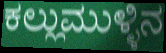
ಕಲ್ಲುಮುಳ್ಳಿನ